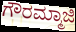
ಗೌರಮ್ಮಾಜಿ